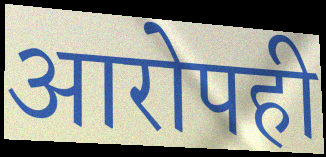
आरोपही